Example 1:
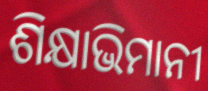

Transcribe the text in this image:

ଶିକ୍ଷାଭିମାନୀ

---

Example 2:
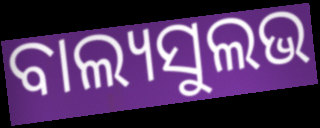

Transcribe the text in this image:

ବାଲ୍ୟସୁଲଭ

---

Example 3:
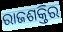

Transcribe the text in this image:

ରାଜଶକ୍ତିର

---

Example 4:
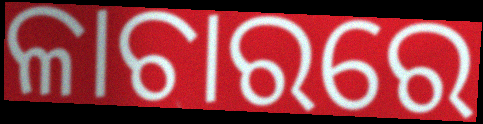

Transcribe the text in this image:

ଳାଚାରରେ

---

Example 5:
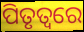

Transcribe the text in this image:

ପିତୃତ୍ୱରେ